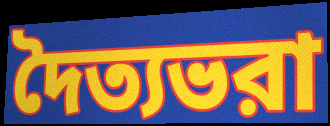
দৈত্যভরা